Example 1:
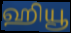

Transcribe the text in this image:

ஹியூ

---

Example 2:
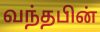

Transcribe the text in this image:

வந்தபின்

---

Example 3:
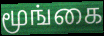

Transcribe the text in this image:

மூங்கை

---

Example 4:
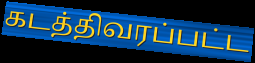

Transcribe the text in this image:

கடத்திவரப்பட்ட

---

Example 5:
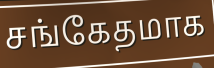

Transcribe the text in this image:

சங்கேதமாக